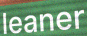
leaner